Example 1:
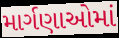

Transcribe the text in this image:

માર્ગણાઓમાં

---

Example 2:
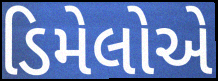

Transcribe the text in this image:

ડિમેલોએ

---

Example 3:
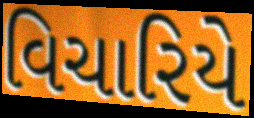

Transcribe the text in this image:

વિચારિયે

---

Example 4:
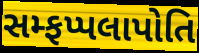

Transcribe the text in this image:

સમ્ફપ્પલાપોતિ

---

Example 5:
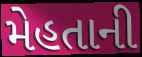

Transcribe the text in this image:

મેહતાની